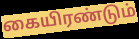
கையிரண்டும்